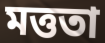
মত্ততা